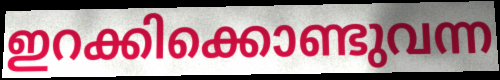
ഇറക്കിക്കൊണ്ടുവന്ന